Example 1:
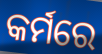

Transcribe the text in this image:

କର୍ମରେ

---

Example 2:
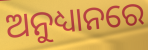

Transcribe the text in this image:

ଅନୁଧ୍ୟାନରେ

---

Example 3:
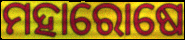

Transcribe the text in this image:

ମହାରୋଷେ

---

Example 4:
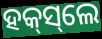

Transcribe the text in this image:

ହକ୍‌ସ୍‌ଲେ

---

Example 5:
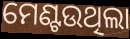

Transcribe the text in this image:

ମେଣ୍ଟଉଥିଲା